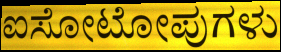
ಐಸೋಟೋಪುಗಳು